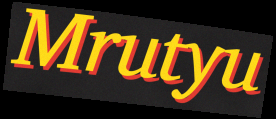
Mrutyu